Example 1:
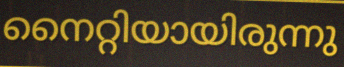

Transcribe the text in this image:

നൈറ്റിയായിരുന്നു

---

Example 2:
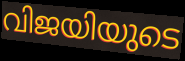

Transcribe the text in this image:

വിജയിയുടെ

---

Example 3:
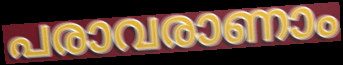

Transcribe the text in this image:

പരാവരാണാം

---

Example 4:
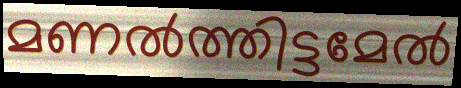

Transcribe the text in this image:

മണൽത്തിട്ടമേൽ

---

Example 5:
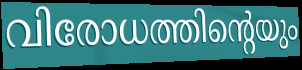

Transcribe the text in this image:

വിരോധത്തിന്റെയും